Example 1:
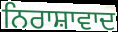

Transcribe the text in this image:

ਨਿਰਾਸ਼ਾਵਾਦ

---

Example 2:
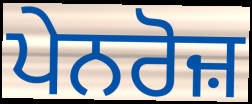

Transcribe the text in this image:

ਪੇਨਰੋਜ਼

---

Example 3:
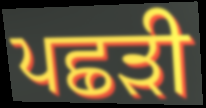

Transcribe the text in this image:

ਪਛੜੀ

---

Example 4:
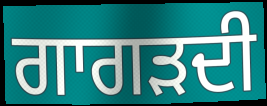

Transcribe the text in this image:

ਗਾਗੜਦੀ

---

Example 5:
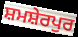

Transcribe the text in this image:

ਸ਼ਮਸ਼ੇਰਪੁਰ